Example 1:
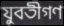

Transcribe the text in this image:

যুবতীগণ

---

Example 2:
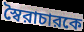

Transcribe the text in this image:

স্বৈরাচারকে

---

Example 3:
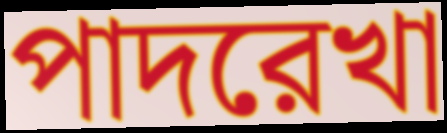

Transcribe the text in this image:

পাদরেখা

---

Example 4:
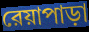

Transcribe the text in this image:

রেয়াপাড়া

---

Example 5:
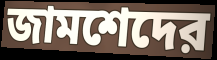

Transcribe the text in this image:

জামশেদের